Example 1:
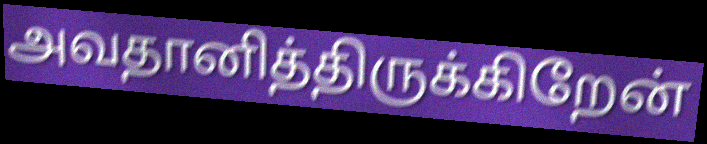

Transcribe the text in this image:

அவதானித்திருக்கிறேன்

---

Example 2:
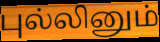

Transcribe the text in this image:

புல்லினும்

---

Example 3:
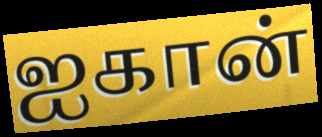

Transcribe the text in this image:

ஐகான்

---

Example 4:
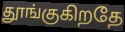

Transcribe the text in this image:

தூங்குகிறதே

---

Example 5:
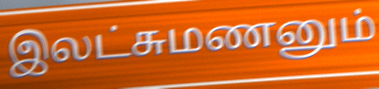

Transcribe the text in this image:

இலட்சுமணனும்